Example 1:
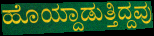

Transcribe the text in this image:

ಹೊಯ್ದಾಡುತ್ತಿದ್ದವು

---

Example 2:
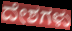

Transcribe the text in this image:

ದೇಶಗಳು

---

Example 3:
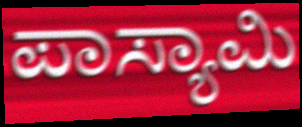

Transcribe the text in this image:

ಪಾಸ್ಯಾಮಿ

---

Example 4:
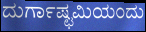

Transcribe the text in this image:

ದುರ್ಗಾಷ್ಟಮಿಯಂದು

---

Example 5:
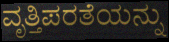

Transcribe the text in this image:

ವೃತ್ತಿಪರತೆಯನ್ನು